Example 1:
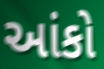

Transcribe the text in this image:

આંકો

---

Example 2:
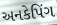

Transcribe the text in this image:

અનકેપિંગ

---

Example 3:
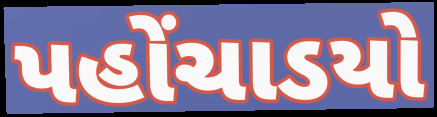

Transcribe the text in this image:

પહોંચાડયો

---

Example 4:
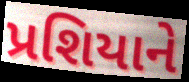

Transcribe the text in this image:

પ્રશિયાને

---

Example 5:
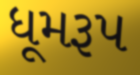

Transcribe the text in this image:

ધૂમરૂપ